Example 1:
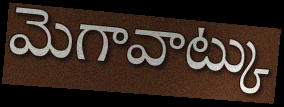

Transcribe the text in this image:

మెగావాట్కు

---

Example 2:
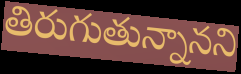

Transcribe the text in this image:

తిరుగుతున్నానని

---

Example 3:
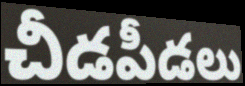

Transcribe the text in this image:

చీడపీడలు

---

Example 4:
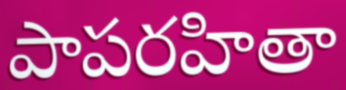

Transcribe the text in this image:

పాపరహితా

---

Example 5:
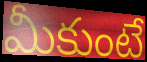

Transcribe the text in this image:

మీకుంటే